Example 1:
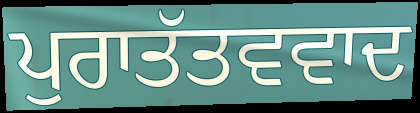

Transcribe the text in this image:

ਪੁਰਾਤੱਤਵਵਾਦ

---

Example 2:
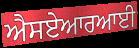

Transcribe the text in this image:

ਐਸਏਆਰਆਈ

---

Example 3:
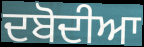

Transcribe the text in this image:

ਦਬੋਦੀਆ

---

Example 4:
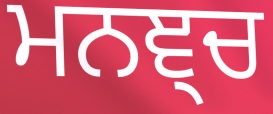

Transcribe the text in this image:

ਮਨਞ੍ਚ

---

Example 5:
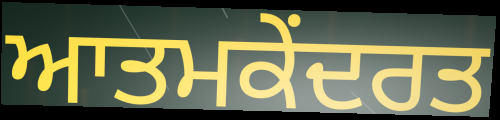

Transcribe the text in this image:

ਆਤਮਕੇਂਦਰਤ